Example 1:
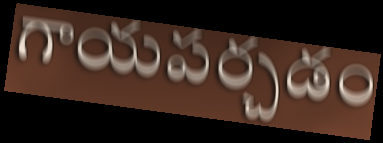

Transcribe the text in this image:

గాయపర్చడం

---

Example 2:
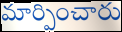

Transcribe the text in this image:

మార్పించారు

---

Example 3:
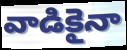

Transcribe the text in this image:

వాడికైనా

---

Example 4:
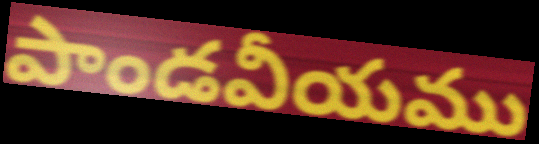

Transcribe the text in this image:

పాండవీయము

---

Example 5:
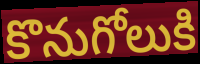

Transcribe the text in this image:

కొనుగోలుకి